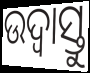
ଉଦ୍ବାସ୍ତୁ